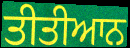
ਤੀਤੀਆਨ